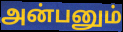
அன்பனும்